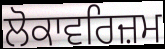
ਲੋਕਾਵਰਿਜ਼ਮ